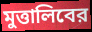
মুত্তালিবের